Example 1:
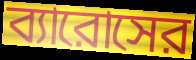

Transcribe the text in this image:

ব্যারোসের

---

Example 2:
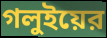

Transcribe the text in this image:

গলুইয়ের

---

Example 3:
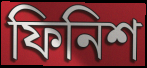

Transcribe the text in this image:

ফিনিশ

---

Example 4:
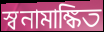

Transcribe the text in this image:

স্বনামাঙ্কিত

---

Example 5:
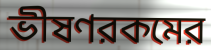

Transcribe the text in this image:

ভীষণরকমের